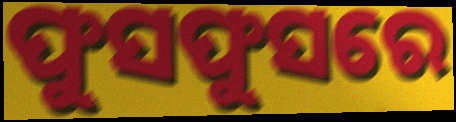
ଫୁସଫୁସରେ